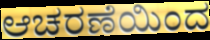
ಆಚರಣೆಯಿಂದ